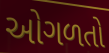
ઓગળતો